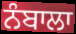
ਨੰਬਾਲਾ